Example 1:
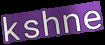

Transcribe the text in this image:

kshne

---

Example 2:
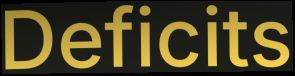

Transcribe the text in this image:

Deficits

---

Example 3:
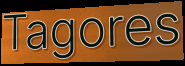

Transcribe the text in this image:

Tagores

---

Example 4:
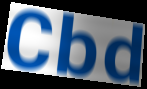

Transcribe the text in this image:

Cbd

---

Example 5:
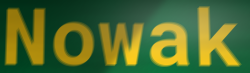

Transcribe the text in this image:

Nowak